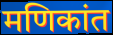
मणिकांत